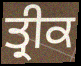
ਤ੍ਰੀਕ